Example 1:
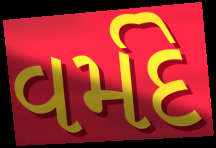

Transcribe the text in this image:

વર્મદે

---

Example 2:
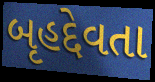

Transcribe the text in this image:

બૃહદ્દેવતા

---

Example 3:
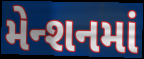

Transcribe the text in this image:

મેન્શનમાં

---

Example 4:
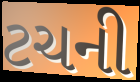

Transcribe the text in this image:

ટચની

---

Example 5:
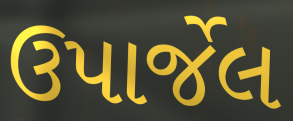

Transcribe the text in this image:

ઉપાર્જેલ